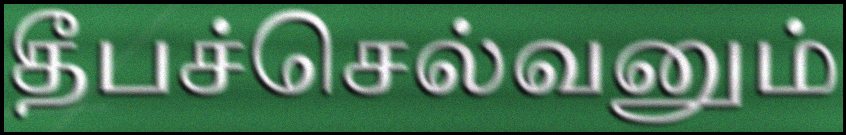
தீபச்செல்வனும்